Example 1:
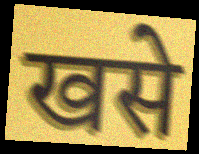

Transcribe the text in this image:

खसे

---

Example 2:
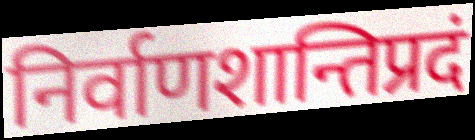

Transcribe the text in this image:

निर्वाणशान्तिप्रदं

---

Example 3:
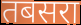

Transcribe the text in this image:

तबसरा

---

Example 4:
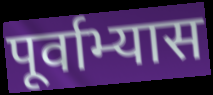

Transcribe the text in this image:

पूर्वाभ्यास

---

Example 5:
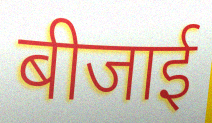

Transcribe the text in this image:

बीजाई